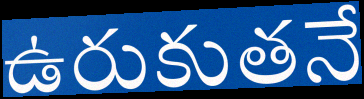
ఉరుకుతనే